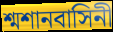
শ্মশানবাসিনী